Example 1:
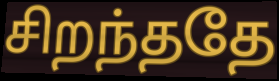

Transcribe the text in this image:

சிறந்ததே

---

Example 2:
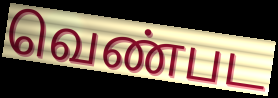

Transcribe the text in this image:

வெண்பட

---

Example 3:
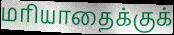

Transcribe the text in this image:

மரியாதைக்குக்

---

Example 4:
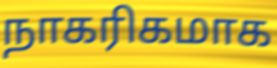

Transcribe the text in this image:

நாகரிகமாக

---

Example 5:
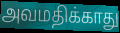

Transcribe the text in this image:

அவமதிக்காது